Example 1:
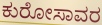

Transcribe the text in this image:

ಕುರೋಸಾವರ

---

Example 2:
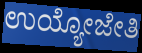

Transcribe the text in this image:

ಉಯ್ಯೋಜೇತಿ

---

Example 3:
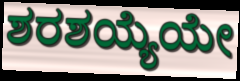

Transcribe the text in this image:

ಶರಶಯ್ಯೆಯೇ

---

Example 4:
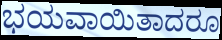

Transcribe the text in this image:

ಭಯವಾಯಿತಾದರೂ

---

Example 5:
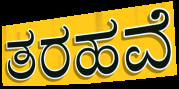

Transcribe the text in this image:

ತರಹವೆ